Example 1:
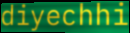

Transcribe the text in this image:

diyechhi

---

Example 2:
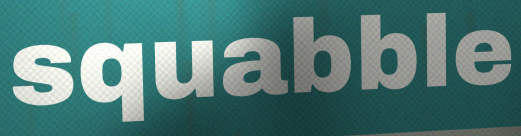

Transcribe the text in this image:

squabble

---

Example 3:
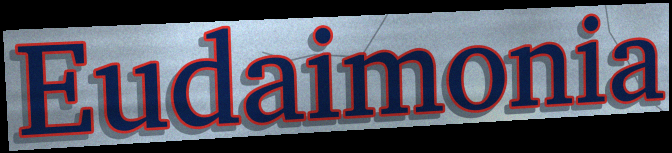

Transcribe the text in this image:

Eudaimonia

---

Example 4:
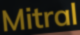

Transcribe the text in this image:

Mitral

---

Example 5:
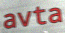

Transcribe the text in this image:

avta